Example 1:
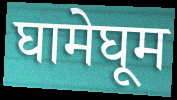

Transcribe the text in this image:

घामेघूम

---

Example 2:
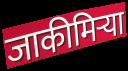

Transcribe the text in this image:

जाकीमिऱ्या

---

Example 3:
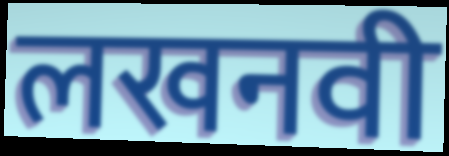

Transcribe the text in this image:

लखनवी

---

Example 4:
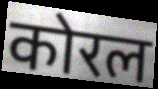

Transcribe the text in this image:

कोरल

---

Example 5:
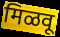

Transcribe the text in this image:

मिळवू